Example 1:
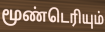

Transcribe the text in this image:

மூண்டெரியும்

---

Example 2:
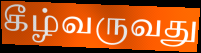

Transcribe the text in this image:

கீழ்வருவது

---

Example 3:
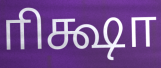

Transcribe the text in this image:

ரிக்ஷா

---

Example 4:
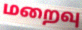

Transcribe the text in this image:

மறைவு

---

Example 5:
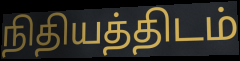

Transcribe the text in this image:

நிதியத்திடம்